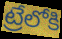
ట్రేలోకి